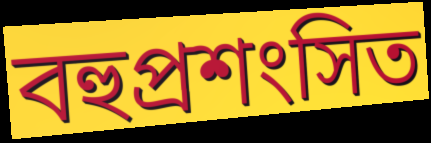
বহুপ্রশংসিত